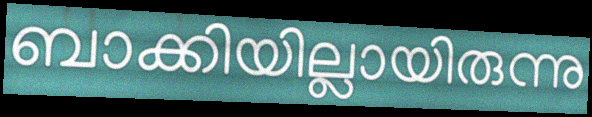
ബാക്കിയില്ലായിരുന്നു